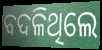
ବଦଳିଥିଲେ